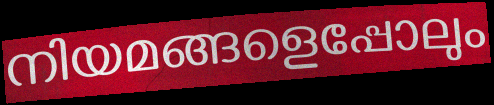
നിയമങ്ങളെപ്പോലും